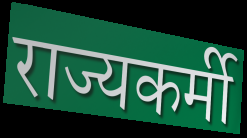
राज्यकर्मी